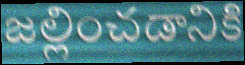
జల్లించడానికి